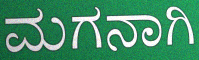
ಮಗನಾಗಿ